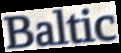
Baltic